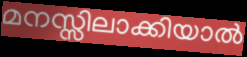
മനസ്സിലാക്കിയാൽ